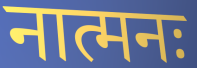
नात्मनः